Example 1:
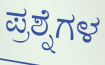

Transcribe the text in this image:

ಪ್ರಶ್ನೆಗಳ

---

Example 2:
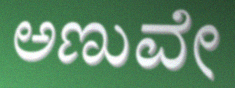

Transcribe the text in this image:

ಅಣುವೇ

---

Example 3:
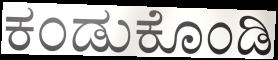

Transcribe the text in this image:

ಕಂಡುಕೊಂಡಿ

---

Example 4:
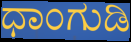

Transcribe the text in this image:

ಧಾಂಗುಡಿ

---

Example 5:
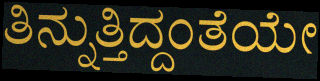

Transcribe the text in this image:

ತಿನ್ನುತ್ತಿದ್ದಂತೆಯೇ